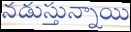
నడుస్తున్నాయి